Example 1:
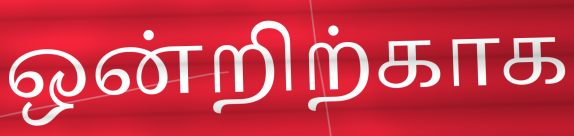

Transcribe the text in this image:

ஒன்றிற்காக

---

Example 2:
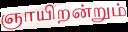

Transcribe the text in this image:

ஞாயிறன்றும்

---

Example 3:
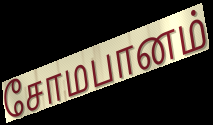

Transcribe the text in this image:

சோமபானம்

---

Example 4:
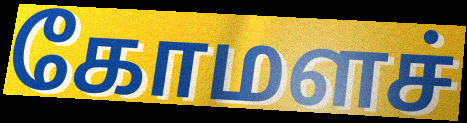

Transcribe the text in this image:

கோமளச்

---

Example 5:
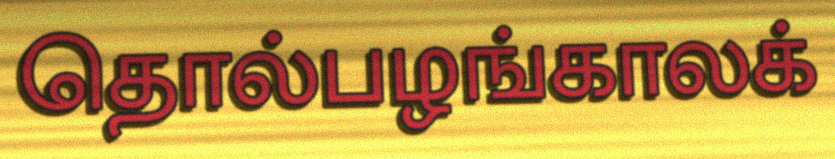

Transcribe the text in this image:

தொல்பழங்காலக்